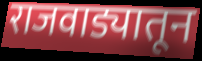
राजवाड्यातून